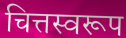
चित्तस्वरूप